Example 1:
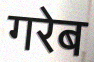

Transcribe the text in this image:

गरेब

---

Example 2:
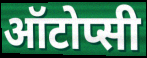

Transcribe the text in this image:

ऑटोप्सी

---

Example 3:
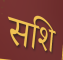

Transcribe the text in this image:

सशि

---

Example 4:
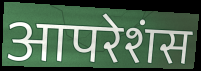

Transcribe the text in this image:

आपरेशंस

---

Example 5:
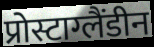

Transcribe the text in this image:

प्रोस्टाग्लैंडीन